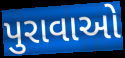
પુરાવાઓ